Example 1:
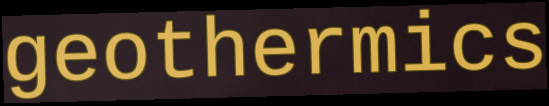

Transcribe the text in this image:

geothermics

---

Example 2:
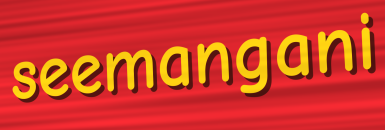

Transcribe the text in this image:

seemangani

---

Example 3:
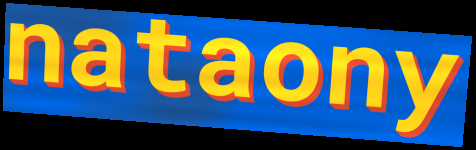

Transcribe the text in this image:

nataony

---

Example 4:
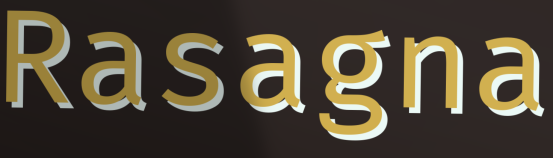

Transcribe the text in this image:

Rasagna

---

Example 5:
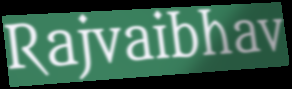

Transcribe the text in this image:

Rajvaibhav